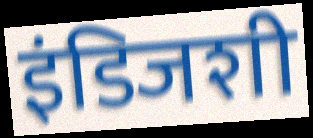
इंडिजशी